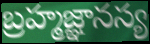
బ్రహ్మజ్ఞానస్య